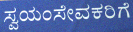
ಸ್ವಯಂಸೇವಕರಿಗೆ